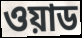
ওয়াড